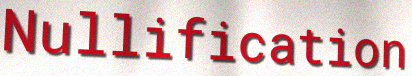
Nullification